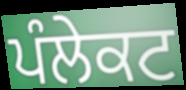
ਪੰਲੇਕਟ